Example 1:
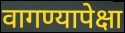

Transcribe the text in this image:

वागण्यापेक्षा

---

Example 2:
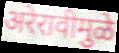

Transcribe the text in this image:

अरेरावीमुळे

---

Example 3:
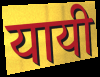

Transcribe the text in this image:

यायी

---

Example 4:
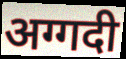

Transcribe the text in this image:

अग्गदी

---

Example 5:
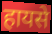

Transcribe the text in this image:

हायसे